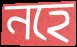
নহে